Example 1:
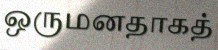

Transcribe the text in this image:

ஒருமனதாகத்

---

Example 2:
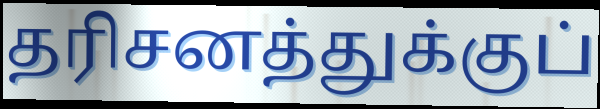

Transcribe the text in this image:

தரிசனத்துக்குப்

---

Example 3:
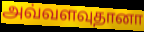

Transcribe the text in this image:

அவ்வளவுதானா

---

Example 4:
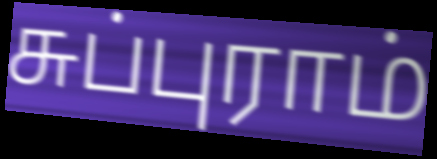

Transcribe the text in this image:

சுப்புராம்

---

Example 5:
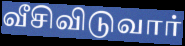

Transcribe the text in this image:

வீசிவிடுவார்